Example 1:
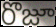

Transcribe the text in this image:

రొజూ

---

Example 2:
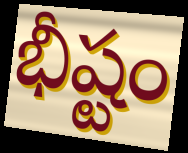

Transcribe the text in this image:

భీష్టం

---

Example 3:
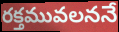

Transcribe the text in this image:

రక్తమువలననే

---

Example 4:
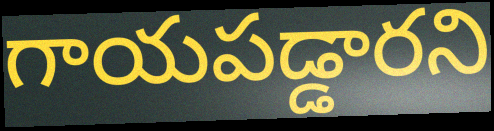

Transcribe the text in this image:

గాయపడ్డారని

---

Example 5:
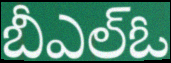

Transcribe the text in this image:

బీఎల్ఓ